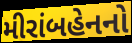
મીરાંબહેનનો